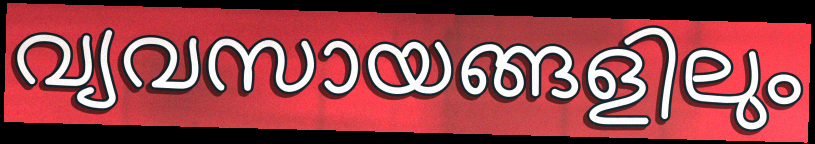
വ്യവസായങ്ങളിലും